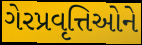
ગેરપ્રવૃત્તિઓને